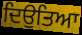
ਦਿਉਤਿਆ